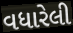
વધારેલી